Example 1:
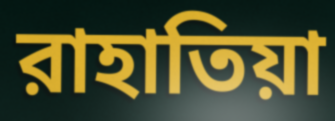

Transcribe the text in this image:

রাহাতিয়া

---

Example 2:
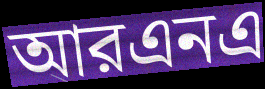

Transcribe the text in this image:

আরএনএ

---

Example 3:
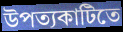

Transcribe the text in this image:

উপত্যকাটিতে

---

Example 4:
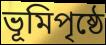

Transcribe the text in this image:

ভূমিপৃষ্ঠে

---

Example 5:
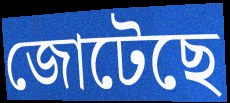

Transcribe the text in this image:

জোটেছে